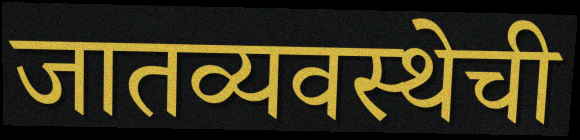
जातव्यवस्थेची